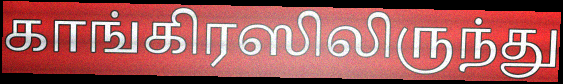
காங்கிரஸிலிருந்து